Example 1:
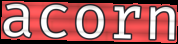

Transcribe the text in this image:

acorn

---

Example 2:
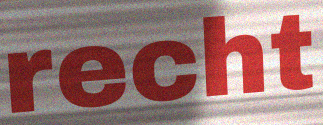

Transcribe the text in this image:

recht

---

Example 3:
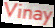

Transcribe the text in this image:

Vinay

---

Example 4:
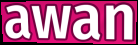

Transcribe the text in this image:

awan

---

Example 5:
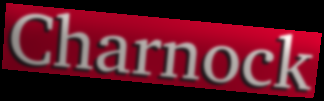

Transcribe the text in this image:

Charnock